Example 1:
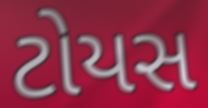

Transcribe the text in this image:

ટોયસ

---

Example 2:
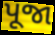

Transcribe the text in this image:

પૂજા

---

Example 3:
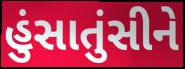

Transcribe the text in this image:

હુંસાતુંસીને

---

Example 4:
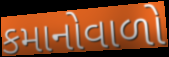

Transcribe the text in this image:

કમાનોવાળો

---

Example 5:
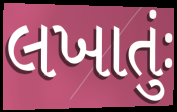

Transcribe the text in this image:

લખાતુંઃ